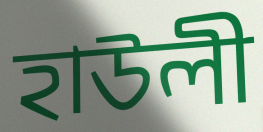
হাউলী